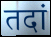
तदां